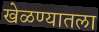
खेळण्यातला